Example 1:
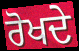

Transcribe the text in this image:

ਰੋਖਦੇ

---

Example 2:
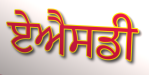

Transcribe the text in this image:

ਏਐਸਡੀ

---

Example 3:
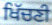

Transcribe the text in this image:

ਖਿੱਚਣੀ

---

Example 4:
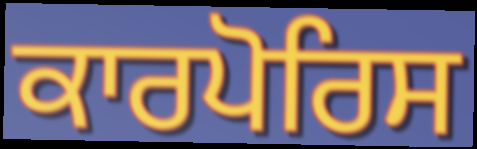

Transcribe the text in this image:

ਕਾਰਪੋਰਿਸ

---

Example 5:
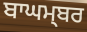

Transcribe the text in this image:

ਬਾਘਮ੍ਬਰ